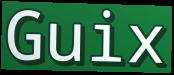
Guix